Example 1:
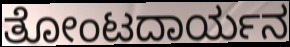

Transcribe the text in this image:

ತೋಂಟದಾರ್ಯನ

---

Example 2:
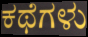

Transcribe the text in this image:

ಕಥೆಗಳು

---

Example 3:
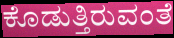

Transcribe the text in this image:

ಕೊಡುತ್ತಿರುವಂತೆ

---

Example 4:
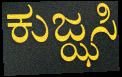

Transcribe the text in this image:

ಕುಜ್ಝಸಿ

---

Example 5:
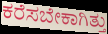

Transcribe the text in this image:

ಕರೆಸಬೇಕಾಗಿತ್ತು